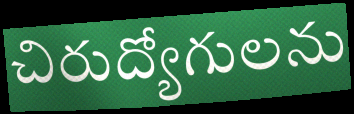
చిరుద్యోగులను